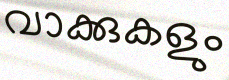
വാക്കുകളും